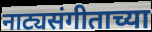
नाट्यसंगीताच्या